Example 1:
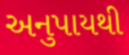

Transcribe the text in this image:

અનુપાયથી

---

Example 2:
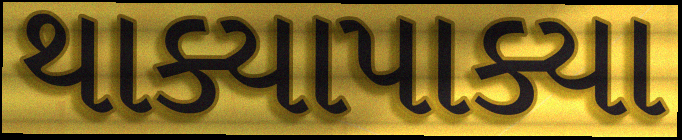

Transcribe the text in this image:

થાક્યાપાક્યા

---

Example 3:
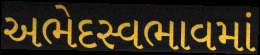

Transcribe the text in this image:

અભેદસ્વભાવમાં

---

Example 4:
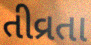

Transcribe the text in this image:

તીવ્રતા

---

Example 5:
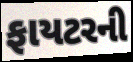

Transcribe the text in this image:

ફાયટરની